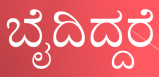
ಬೈದಿದ್ದರೆ